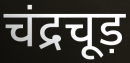
चंद्रचूड़